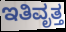
ಇತಿವೃತ್ತ